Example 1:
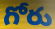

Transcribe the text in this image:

గోరు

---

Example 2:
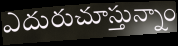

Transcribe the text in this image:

ఎదురుచూస్తున్నాం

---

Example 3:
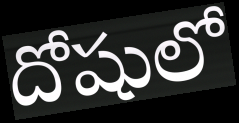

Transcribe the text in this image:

దోషులో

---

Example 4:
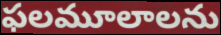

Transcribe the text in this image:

ఫలమూలాలను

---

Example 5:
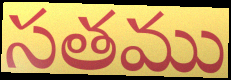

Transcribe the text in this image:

సతము